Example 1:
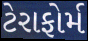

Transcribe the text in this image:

ટેરાફોર્મ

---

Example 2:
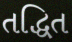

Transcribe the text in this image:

તદ્ધિત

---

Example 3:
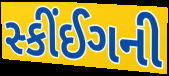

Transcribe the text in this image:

સ્કીંઈગની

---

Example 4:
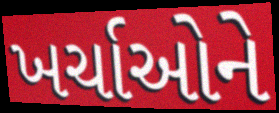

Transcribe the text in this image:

ખર્ચાઓને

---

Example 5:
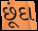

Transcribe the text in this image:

છૂંદા